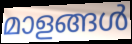
മാളങ്ങൾ